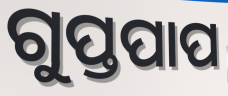
ଗୁପ୍ତପାପ